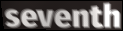
seventh